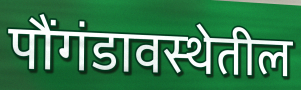
पौंगंडावस्थेतील